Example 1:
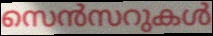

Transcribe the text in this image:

സെൻസറുകൾ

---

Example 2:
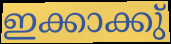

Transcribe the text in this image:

ഇക്കാക്കു്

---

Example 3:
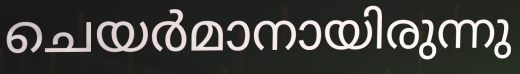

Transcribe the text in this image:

ചെയർമാനായിരുന്നു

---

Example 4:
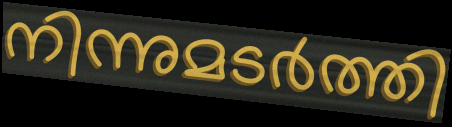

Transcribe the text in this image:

നിന്നുമടർത്തി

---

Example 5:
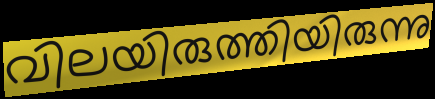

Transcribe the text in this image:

വിലയിരുത്തിയിരുന്നു